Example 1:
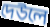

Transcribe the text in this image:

দেউলে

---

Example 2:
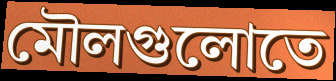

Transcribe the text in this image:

মৌলগুলোতে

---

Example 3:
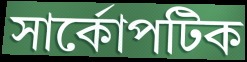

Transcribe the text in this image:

সার্কোপটিক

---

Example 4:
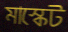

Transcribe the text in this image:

মাস্কেট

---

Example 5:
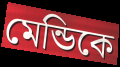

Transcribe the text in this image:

মেন্ডিকে